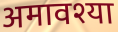
अमावश्या